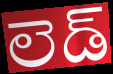
లెడ్